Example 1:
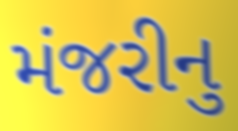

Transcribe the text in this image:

મંજરીનુ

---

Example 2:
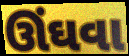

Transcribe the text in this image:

ઊંઘવા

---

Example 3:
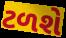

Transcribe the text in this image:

ટળશે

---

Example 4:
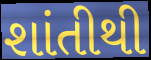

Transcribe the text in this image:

શાંતીથી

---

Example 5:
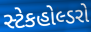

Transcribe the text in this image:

સ્ટેકહોલ્ડરો